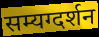
सम्यग्दर्शन